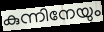
കുന്നിനേയും